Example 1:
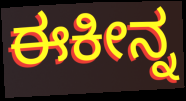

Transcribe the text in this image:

ಈಕೀನ್ನ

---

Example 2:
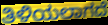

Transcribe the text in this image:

ತಿಳಿಯಲಾಗದೆ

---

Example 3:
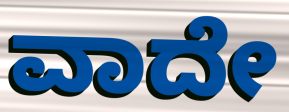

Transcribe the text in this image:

ವಾದೇ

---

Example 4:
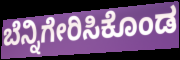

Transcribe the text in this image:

ಬೆನ್ನಿಗೇರಿಸಿಕೊಂಡ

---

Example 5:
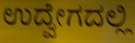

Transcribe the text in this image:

ಉದ್ವೇಗದಲ್ಲಿ